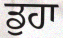
ਡੁਹਾ